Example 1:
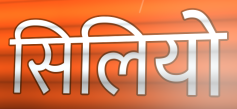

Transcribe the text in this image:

सिलियो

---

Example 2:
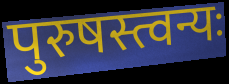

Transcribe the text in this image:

पुरुषस्त्वन्यः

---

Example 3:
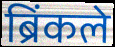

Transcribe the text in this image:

ब्रिंकले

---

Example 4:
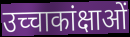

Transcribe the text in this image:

उच्चाकांक्षाओं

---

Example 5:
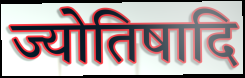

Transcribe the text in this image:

ज्योतिषादि